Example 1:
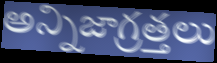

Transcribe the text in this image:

అన్నిజాగ్రత్తలు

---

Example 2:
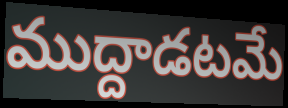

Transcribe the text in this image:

ముద్దాడటమే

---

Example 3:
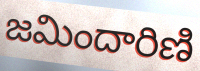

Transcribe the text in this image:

జమిందారిణి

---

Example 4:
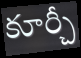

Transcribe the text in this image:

కూర్చీ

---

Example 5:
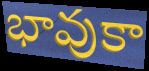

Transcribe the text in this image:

భావుకా